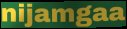
nijamgaa